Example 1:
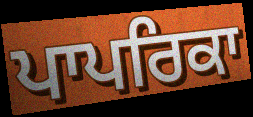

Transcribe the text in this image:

ਪਾਪਰਿਕਾ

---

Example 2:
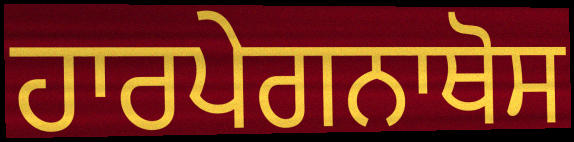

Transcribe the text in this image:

ਹਾਰਪੇਗਨਾਥੋਸ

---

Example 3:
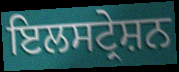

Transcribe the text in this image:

ਇਲਸਟ੍ਰੇਸ਼ਨ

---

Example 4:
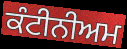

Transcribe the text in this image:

ਕੰਟੀਨੀਅਮ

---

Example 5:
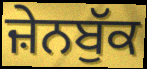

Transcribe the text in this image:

ਜ਼ੇਨਬੁੱਕ